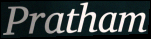
Pratham